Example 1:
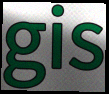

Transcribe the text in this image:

gis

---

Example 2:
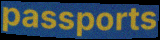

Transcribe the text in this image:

passports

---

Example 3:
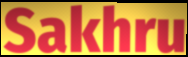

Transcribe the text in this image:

Sakhru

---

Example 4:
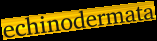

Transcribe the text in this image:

echinodermata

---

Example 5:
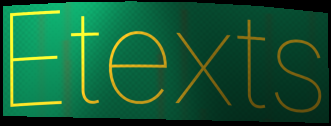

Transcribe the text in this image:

Etexts